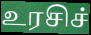
உரசிச்